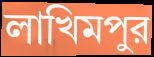
লাখিমপুর